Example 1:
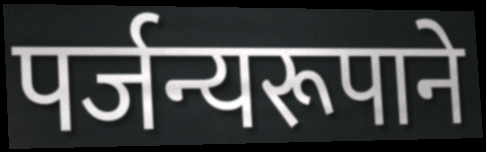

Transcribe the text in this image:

पर्जन्यरूपाने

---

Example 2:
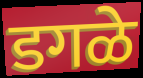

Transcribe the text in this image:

डगळे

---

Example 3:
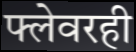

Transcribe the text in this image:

फ्लेवरही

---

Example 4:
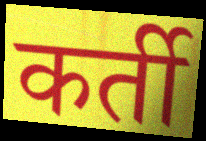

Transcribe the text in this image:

कर्ती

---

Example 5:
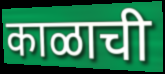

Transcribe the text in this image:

काळाची